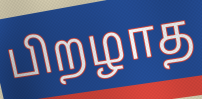
பிறழாத